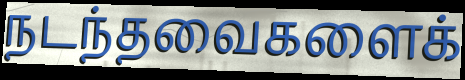
நடந்தவைகளைக்